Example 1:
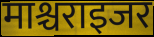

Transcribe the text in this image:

माश्चराइजर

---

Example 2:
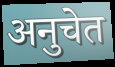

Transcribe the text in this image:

अनुचेत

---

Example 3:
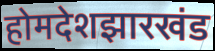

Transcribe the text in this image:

होमदेशझारखंड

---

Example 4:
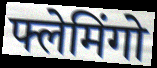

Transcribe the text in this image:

फ्लेमिंगो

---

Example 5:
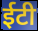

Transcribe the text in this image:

ईटी